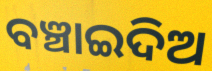
ବଞ୍ଚାଇଦିଅ